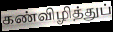
கண்விழித்துப்